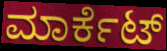
ಮಾರ್ಕೆಟ್